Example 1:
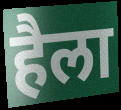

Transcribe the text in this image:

हैला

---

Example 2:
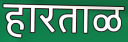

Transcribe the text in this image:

हारताळ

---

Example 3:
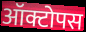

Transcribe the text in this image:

ऑक्टोपस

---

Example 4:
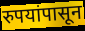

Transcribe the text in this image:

रुपयांपासून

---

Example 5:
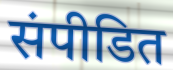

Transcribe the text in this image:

संपीडित